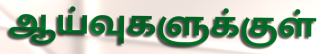
ஆய்வுகளுக்குள்